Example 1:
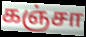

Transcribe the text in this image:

கஞ்சா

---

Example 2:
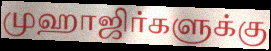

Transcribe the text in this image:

முஹாஜிர்களுக்கு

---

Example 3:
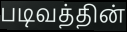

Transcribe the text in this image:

படிவத்தின்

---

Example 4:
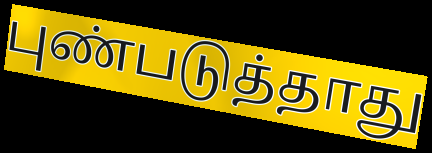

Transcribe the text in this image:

புண்படுத்தாது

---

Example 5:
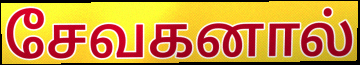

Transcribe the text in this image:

சேவகனால்